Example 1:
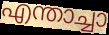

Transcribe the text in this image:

എന്താച്ചാ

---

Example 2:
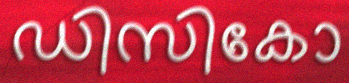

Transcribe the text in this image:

ഡിസികോ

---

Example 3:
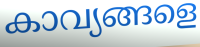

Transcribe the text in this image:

കാവ്യങ്ങളെ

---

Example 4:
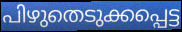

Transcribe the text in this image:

പിഴുതെടുക്കപ്പെട്ട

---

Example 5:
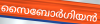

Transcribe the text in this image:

സൈബോർഗിയൻ